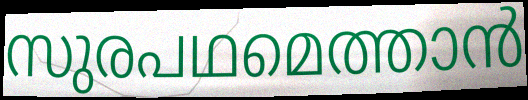
സുരപഥമെത്താൻ